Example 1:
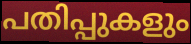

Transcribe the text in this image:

പതിപ്പുകളും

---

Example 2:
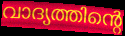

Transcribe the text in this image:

വാദ്യത്തിന്റെ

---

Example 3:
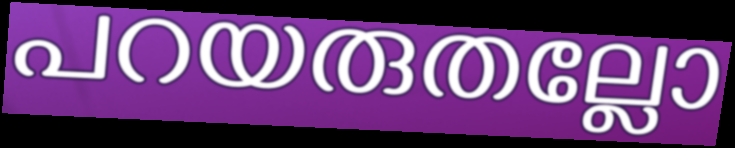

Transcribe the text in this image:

പറയരുതല്ലോ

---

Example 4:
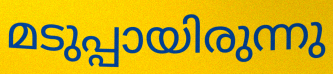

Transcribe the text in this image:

മടുപ്പായിരുന്നു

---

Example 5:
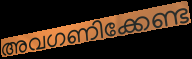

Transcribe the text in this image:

അവഗണിക്കേണ്ട